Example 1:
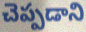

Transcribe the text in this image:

చెప్పడాని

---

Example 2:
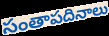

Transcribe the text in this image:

సంతాపదినాలు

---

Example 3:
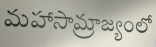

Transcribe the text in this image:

మహాసామ్రాజ్యంలో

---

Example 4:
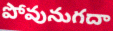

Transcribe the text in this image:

పోవునుగదా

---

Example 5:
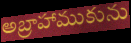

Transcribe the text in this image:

అబ్రాహాముకును